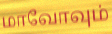
மாவோவும்